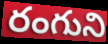
రంగుని